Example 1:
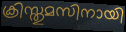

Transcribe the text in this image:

ക്രിസ്തുമസിനായി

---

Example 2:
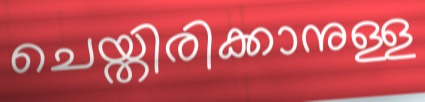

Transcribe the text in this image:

ചെയ്തിരിക്കാനുള്ള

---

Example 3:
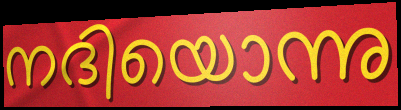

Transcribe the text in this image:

നദിയൊന്നു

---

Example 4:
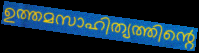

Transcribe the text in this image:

ഉത്തമസാഹിത്യത്തിന്റെ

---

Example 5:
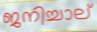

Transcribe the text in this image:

ജനിച്ചാല്